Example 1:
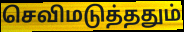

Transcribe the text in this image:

செவிமடுத்ததும்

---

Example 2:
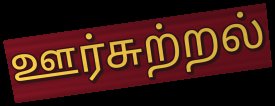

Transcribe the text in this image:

ஊர்சுற்றல்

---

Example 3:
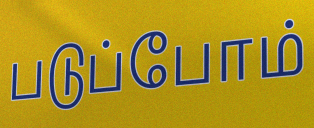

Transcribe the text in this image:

படுப்போம்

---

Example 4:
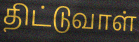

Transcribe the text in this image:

திட்டுவாள்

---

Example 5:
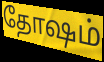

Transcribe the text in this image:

தோஷம்